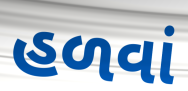
હળવાં